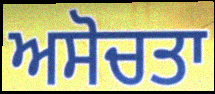
ਅਸੋਚਤਾ